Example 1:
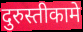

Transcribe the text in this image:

दुरुस्तीकामे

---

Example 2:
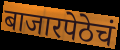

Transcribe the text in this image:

बाजारपेठेचं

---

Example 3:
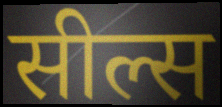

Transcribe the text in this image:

सील्स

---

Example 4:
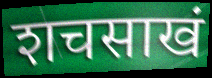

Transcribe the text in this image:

शचसाखं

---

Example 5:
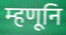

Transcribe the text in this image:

म्हणूनि